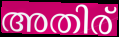
അതിര്